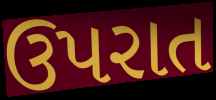
ઉપરાત